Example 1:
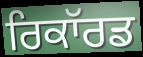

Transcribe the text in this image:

ਰਿਕਾੱਰਡ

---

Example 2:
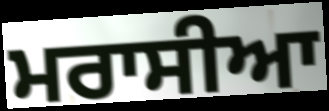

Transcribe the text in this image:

ਮਰਾਸੀਆ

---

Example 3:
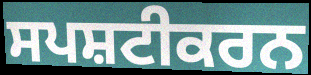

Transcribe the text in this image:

ਸਪਸ਼ਟੀਕਰਨ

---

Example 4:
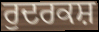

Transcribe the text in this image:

ਰੁਦਰਕਸ਼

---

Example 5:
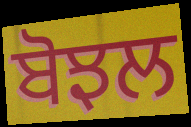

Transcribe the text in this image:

ਬੋਝਲ